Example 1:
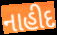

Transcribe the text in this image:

નાહીદ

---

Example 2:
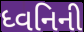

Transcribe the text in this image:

ધ્વનિની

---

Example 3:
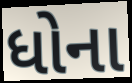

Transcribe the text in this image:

ધોના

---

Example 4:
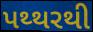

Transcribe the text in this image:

પથ્થરથી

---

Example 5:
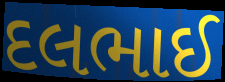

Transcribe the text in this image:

દલભાઈ